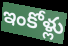
ఇంకోళ్లు